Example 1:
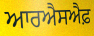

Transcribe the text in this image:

ਆਰਐਸਐਫ਼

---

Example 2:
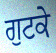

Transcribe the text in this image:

ਗੁਟਕੇ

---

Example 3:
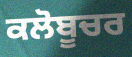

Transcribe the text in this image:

ਕਲੋਬੂਚਰ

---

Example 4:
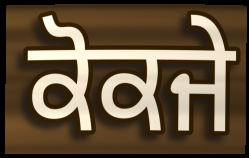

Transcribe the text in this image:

ਕੋਕਜੇ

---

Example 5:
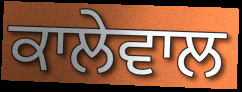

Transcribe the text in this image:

ਕਾਲੇਵਾਲ